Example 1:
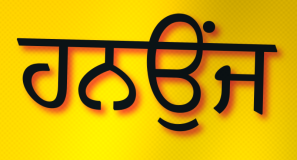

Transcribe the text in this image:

ਹਨਉਂਜ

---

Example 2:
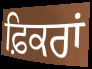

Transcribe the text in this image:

ਫ਼ਿਕਰਾਂ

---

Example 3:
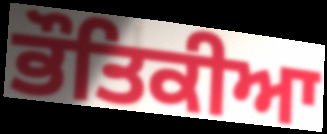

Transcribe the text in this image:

ਭੌਤਿਕੀਆ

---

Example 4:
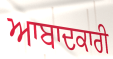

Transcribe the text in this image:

ਆਬਾਦਕਾਰੀ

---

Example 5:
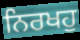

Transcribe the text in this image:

ਨਿਰਖਹੁ